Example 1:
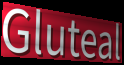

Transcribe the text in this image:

Gluteal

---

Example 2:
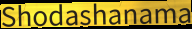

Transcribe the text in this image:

Shodashanama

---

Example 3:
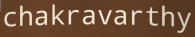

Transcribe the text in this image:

chakravarthy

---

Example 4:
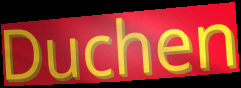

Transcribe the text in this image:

Duchen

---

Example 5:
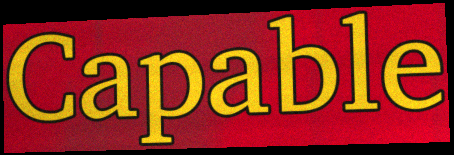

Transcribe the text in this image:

Capable